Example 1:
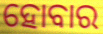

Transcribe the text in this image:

ହୋବାର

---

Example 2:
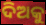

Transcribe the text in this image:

ଦିଅକୁ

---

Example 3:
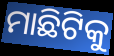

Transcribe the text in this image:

ମାଛିଟିକୁ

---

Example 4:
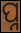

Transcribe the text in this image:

ପ୍ନ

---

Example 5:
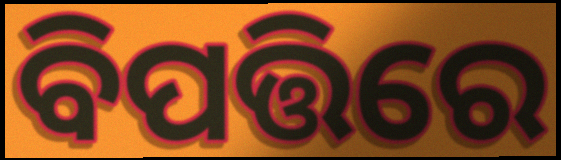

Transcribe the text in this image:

ବିପତ୍ତିରେ